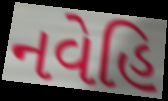
નવેહિ